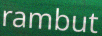
rambut